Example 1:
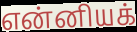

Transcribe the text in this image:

என்னியக்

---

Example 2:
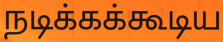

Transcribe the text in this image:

நடிக்கக்கூடிய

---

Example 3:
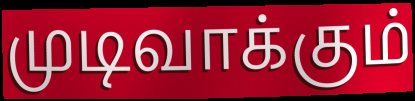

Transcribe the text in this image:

முடிவாக்கும்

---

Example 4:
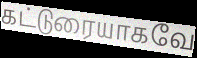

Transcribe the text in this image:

கட்டுரையாகவே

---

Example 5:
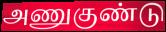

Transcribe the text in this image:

அணுகுண்டு